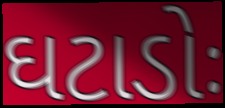
ઘટાડોઃ